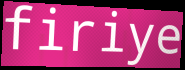
firiye